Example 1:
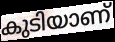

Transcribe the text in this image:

കുടിയാണ്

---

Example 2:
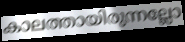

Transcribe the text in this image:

കാലത്തായിരുന്നല്ലോ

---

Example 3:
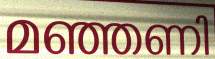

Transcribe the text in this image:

മഞ്ഞണി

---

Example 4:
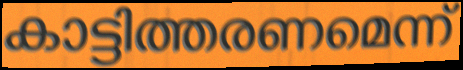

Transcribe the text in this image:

കാട്ടിത്തരണമെന്ന്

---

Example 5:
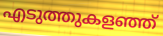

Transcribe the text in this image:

എടുത്തുകളഞ്ഞ്